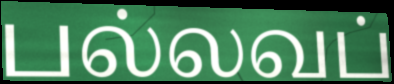
பல்லவப்